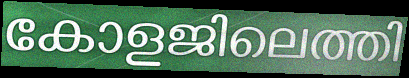
കോളജിലെത്തി